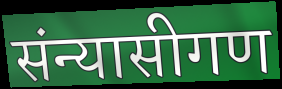
संन्यासीगण